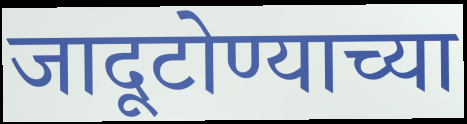
जादूटोण्याच्या